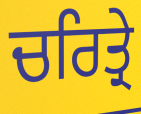
ਚਰਿਤ੍ਰੇ